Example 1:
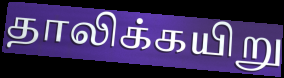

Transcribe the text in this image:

தாலிக்கயிறு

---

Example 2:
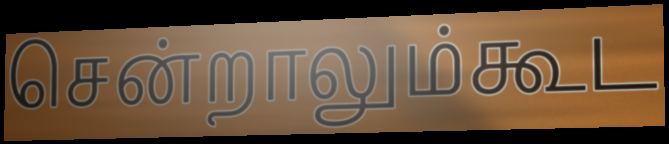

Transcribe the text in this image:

சென்றாலும்கூட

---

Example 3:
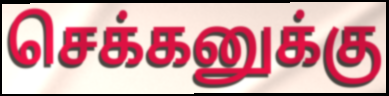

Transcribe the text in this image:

செக்கனுக்கு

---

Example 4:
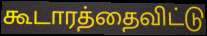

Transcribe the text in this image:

கூடாரத்தைவிட்டு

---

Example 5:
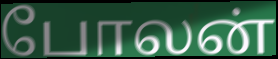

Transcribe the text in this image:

போலன்